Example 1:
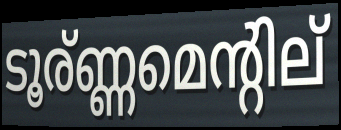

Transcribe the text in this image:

ടൂര്ണ്ണമെന്റില്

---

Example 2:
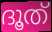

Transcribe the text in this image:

ദൂത്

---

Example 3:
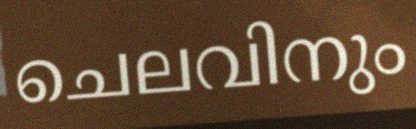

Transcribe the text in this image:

ചെലവിനും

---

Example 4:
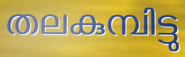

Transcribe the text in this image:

തലകുമ്പിട്ടു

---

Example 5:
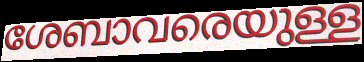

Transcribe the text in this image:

ശേബാവരെയുള്ള